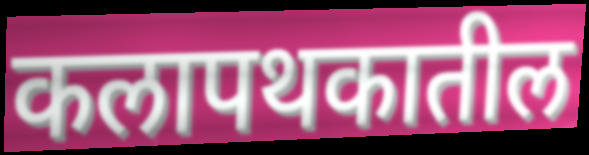
कलापथकातील